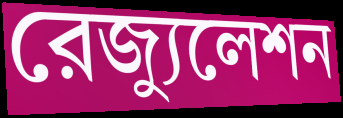
রেজ্যুলেশন